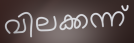
വിലക്കന്ന്